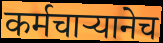
कर्मचाऱ्यानेच